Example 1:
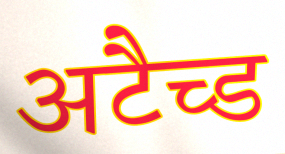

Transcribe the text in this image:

अटैच्ड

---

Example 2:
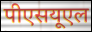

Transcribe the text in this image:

पीएसयूएल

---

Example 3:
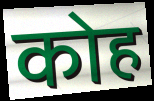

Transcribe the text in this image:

कोह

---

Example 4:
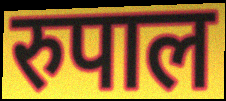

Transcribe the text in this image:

रुपाल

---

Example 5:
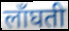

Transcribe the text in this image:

लाँघती